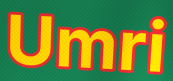
Umri